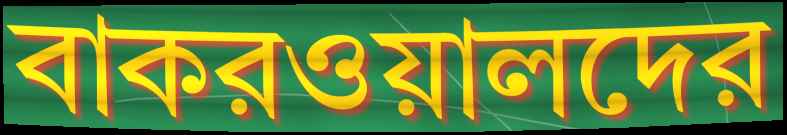
বাকরওয়ালদের